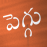
పెగ్గు